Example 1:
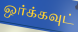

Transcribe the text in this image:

ஒர்க்கவுட்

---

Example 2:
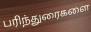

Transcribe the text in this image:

பரிந்துரைகளை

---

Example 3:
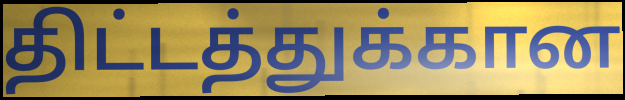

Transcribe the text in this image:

திட்டத்துக்கான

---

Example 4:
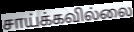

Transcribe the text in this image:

சாய்க்கவில்லை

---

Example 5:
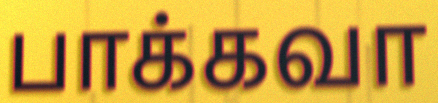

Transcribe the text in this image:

பாக்கவா